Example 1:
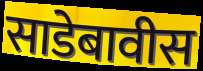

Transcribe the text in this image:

साडेबावीस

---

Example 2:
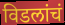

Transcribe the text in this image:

विडलांचं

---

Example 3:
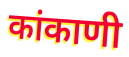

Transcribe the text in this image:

कांकाणी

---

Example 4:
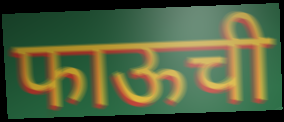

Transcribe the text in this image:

फाऊची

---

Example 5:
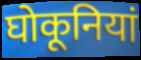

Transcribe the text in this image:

घोकूनियां